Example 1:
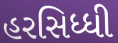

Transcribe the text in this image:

હરસિધ્ધી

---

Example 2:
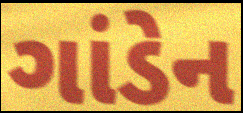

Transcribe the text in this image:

ગાંડેન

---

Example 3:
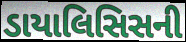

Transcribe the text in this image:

ડાયાલિસિસની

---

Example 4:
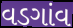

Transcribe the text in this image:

વડગાંવ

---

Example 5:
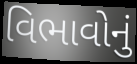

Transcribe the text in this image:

વિભાવોનું